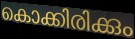
കൊക്കിരിക്കും